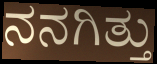
ನನಗಿತ್ತು